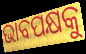
ଭାବପକ୍ଷକୁ